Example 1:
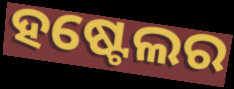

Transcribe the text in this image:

ହଷ୍ଟେଲର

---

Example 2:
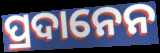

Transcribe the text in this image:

ପ୍ରଦାନେନ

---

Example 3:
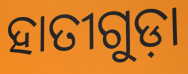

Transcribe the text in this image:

ହାତୀଗୁଡ଼ା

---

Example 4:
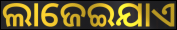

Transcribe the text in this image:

ଲାଜେଇଯାଏ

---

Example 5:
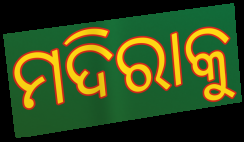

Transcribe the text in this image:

ମଦିରାକୁ